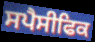
ਸਪੈਸੀਫਿਕ